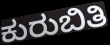
ಕುರುಬಿತಿ